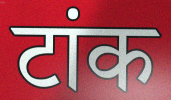
टांक